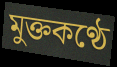
মুক্তকণ্ঠে